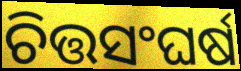
ଚିତ୍ତସଂଘର୍ଷ